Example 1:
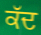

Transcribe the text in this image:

ਕੱਦ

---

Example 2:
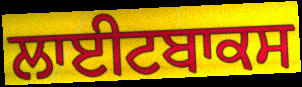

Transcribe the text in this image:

ਲਾਈਟਬਾਕਸ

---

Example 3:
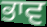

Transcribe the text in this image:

ਭਾਵ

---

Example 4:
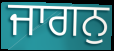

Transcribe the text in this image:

ਜਾਗਨੁ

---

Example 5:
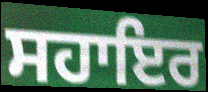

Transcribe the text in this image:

ਸਹਾਇਰ